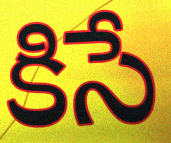
కిసే